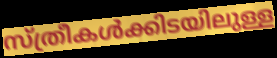
സ്ത്രീകൾക്കിടയിലുള്ള